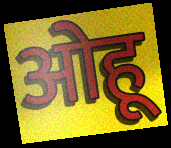
ओहू